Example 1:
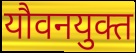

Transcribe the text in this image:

यौवनयुक्त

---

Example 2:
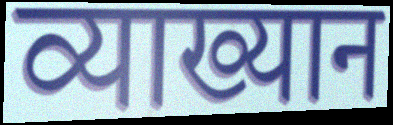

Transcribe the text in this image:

व्याख्यान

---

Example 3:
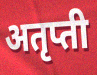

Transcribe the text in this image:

अतृप्ती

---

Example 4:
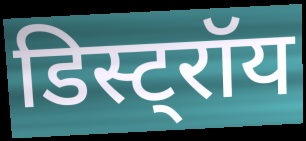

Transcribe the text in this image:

डिस्ट्रॉय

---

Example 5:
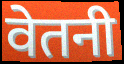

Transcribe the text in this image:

वेतनी